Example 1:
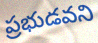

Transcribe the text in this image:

ప్రభుడవని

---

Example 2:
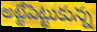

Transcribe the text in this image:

అట్టేపెట్టుకున్న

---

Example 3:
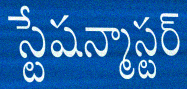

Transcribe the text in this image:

స్టేషన్మాస్టర్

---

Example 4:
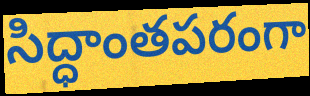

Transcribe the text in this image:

సిద్ధాంతపరంగా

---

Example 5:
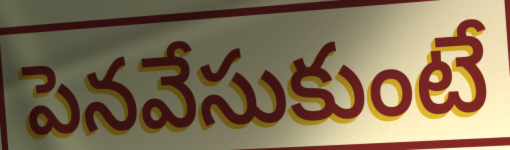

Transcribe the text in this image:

పెనవేసుకుంటే